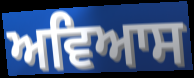
ਅਵਿਆਸ